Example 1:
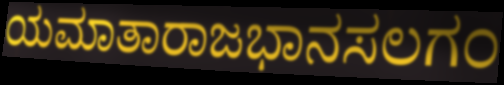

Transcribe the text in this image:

ಯಮಾತಾರಾಜಭಾನಸಲಗಂ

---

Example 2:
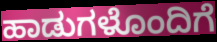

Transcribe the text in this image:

ಹಾಡುಗಳೊಂದಿಗೆ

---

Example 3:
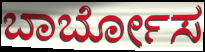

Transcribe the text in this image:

ಬಾರ್ಬೋಸ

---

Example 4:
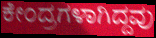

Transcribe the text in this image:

ಕೇಂದ್ರಗಳಾಗಿದ್ದವು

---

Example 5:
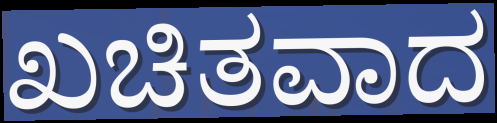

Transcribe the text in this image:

ಖಚಿತವಾದ